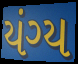
યંગ્ય